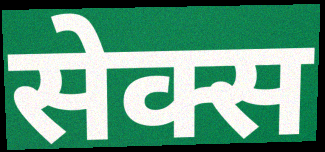
सेक्स